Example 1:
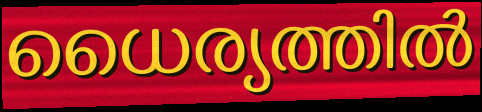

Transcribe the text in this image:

ധൈര്യത്തിൽ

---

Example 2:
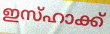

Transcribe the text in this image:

ഇസ്ഹാക്ക്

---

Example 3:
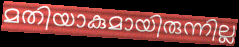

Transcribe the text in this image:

മതിയാകുമായിരുന്നില്ല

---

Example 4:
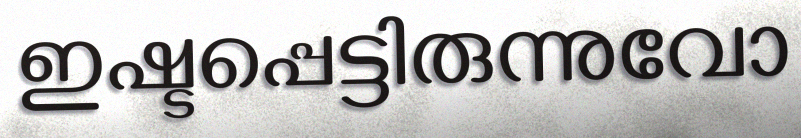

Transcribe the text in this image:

ഇഷ്ടപ്പെട്ടിരുന്നുവോ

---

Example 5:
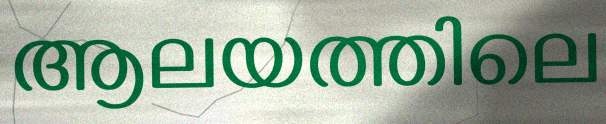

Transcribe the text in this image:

ആലയത്തിലെ